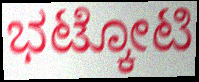
ಭಟ್ಕೋಟಿ